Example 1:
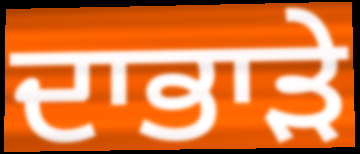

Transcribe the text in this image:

ਦਾਭਾੜੇ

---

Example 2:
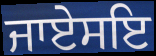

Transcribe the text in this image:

ਜਾਏਸਇ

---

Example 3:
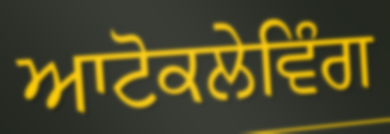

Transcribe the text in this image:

ਆਟੋਕਲੇਵਿੰਗ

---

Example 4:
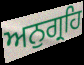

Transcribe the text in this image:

ਅਨੁਗ੍ਰਹਿ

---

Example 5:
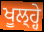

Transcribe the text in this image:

ਖੂਲ੍ਹ੍ਹੇ